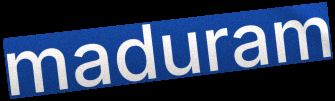
maduram